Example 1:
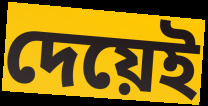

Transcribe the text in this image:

দেয়েই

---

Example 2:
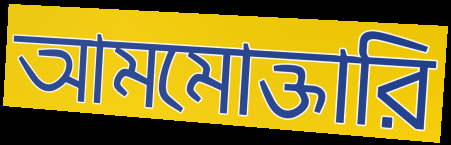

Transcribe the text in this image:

আমমোক্তারি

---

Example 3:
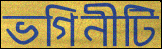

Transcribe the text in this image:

ভগিনীটি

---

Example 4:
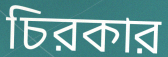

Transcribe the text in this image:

চিরকার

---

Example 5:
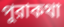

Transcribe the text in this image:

পুরাকথা